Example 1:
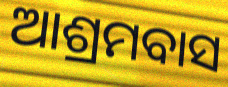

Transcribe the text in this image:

ଆଶ୍ରମବାସ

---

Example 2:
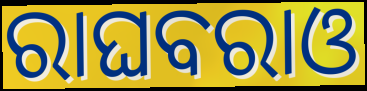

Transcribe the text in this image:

ରାଘବରାଓ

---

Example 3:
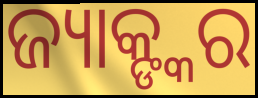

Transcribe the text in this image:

ଜ୍ୟାକ୍ଙ୍କର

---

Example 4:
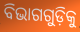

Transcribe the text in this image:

ବିଭାଗଗୁଡ଼ିକୁ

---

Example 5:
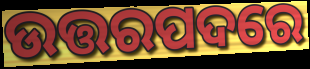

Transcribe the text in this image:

ଉତ୍ତରପଦରେ